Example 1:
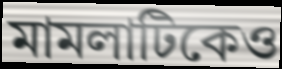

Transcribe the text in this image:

মামলাটিকেও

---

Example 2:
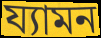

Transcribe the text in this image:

য্যামন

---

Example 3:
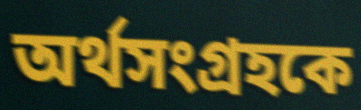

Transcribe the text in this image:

অর্থসংগ্রহকে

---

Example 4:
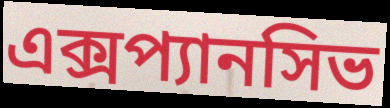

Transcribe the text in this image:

এক্সপ্যানসিভ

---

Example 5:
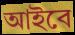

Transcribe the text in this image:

আইবে